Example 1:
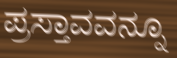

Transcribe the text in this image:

ಪ್ರಸ್ತಾವವನ್ನೂ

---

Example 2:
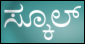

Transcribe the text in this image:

ಸ್ಕೂಲ್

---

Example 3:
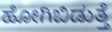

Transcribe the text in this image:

ಹೋಗಿಬಿಡುತ್ತೆ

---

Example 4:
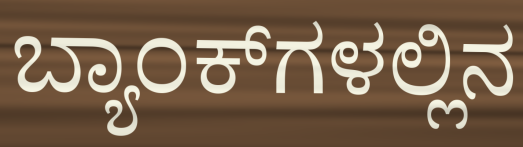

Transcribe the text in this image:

ಬ್ಯಾಂಕ್‌ಗಳಲ್ಲಿನ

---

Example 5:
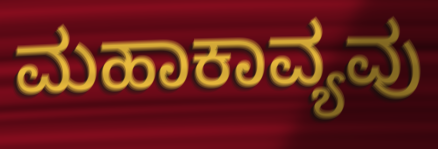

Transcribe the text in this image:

ಮಹಾಕಾವ್ಯವು